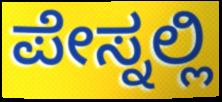
ಪೇಸ್ನಲ್ಲಿ